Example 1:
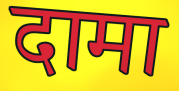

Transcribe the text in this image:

दामा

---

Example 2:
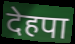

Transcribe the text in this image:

देहपा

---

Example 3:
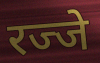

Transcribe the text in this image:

रज्जे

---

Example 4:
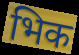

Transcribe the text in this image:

भिक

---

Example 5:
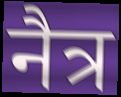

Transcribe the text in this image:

नैत्र